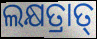
ଲକ୍ଷତ୍ରାତ୍